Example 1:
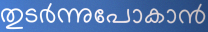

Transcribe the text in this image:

തുടർന്നുപോകാൻ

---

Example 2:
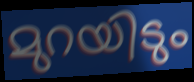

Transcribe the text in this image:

മുറയിടും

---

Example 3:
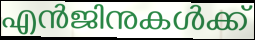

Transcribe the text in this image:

എൻജിനുകൾക്ക്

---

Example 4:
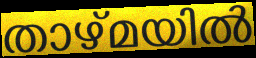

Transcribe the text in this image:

താഴ്മയിൽ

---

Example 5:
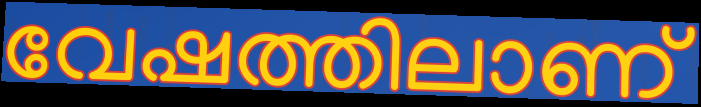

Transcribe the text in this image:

വേഷത്തിലാണ്